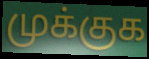
முக்குக